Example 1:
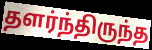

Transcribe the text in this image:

தளர்ந்திருந்த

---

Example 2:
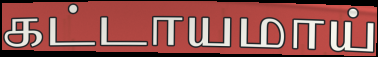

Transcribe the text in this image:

கட்டாயமாய்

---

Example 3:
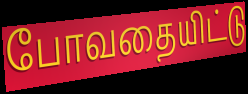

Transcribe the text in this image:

போவதையிட்டு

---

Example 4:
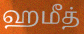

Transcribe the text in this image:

ஹமீத்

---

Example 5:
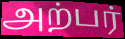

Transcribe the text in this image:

அற்பர்